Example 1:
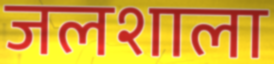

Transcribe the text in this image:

जलशाला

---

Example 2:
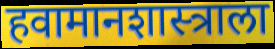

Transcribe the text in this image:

हवामानशास्त्राला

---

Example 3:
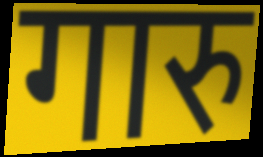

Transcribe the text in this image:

गारु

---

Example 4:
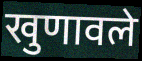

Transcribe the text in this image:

खुणावले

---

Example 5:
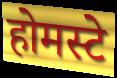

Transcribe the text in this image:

होमस्टे